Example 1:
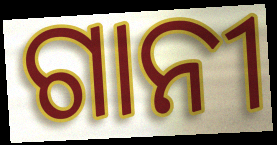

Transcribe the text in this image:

ଗାନୀ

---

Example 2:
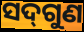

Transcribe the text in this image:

ସଦ୍‌ଗୁଣ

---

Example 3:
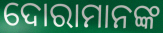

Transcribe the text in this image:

ଦୋରାମାନଙ୍କ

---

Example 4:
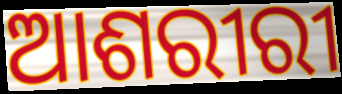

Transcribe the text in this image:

ଆଶରୀରୀ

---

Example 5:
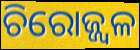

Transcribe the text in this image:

ଚିରୋଜ୍ଜ୍ଵଳ